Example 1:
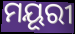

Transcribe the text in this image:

ମୟୂରୀ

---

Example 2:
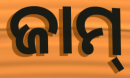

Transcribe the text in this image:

ଜାମ୍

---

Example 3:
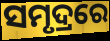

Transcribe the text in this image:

ସମୃଦ୍ରରେ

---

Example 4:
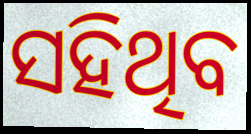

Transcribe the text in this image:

ସହିଥିବ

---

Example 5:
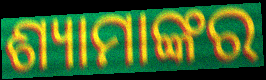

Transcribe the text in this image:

ଶ୍ୟାମାଙ୍କର